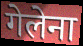
गेलेना